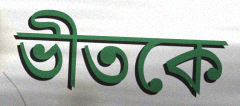
ভীতকে